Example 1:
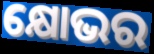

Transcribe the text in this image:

କ୍ଷୋଭର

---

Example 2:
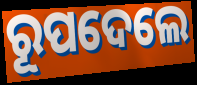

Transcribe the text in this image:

ରୂପଦେଲେ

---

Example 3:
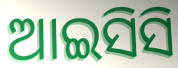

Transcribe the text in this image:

ଆଇସିସି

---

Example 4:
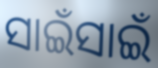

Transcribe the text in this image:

ସାଇଁସାଇଁ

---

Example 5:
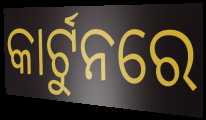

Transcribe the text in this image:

କାର୍ଟୁନରେ